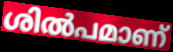
ശിൽപമാണ്